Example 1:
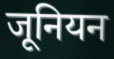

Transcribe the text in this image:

जूनियन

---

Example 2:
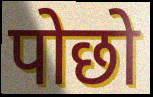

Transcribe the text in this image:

पोछो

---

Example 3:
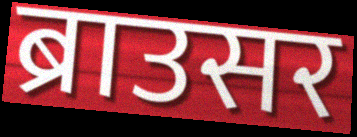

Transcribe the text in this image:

ब्राउसर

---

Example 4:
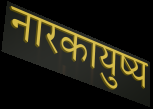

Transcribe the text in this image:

नारकायुष्य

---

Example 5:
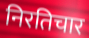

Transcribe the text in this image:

निरतिचार